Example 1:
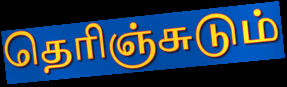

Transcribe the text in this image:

தெரிஞ்சுடும்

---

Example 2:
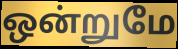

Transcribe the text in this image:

ஒன்றுமே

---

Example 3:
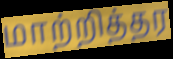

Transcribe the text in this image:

மாற்றித்தர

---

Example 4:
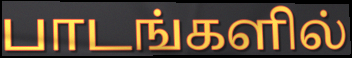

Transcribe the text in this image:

பாடங்களில்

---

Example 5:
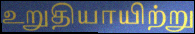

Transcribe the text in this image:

உறுதியாயிற்று